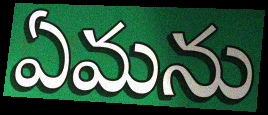
ఏమను